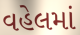
વહેલમાં